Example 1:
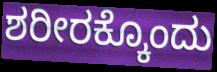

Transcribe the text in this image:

ಶರೀರಕ್ಕೊಂದು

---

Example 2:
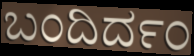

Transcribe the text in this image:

ಬಂದಿರ್ದಂ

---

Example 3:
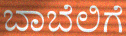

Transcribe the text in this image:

ಬಾಬೆಲಿಗೆ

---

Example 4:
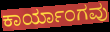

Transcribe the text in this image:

ಕಾರ್ಯಾಂಗವು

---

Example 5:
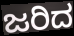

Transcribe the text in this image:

ಜರಿದ